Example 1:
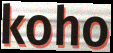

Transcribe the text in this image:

koho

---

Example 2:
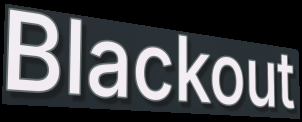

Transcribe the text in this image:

Blackout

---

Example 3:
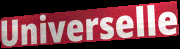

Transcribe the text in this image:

Universelle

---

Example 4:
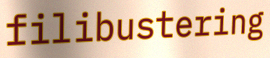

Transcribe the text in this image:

filibustering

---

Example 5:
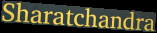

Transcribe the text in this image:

Sharatchandra